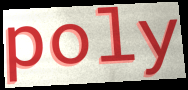
poly